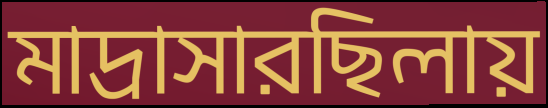
মাদ্রাসারছিলায়